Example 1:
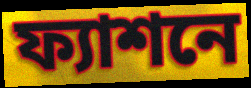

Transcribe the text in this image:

ফ্যাশনে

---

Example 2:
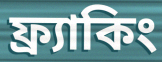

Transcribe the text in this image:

ফ্র্যাকিং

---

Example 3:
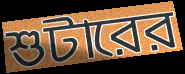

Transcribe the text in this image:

শুটারের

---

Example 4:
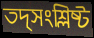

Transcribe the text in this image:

তদ্‌সংশ্লিষ্ট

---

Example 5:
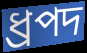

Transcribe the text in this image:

ধ্রপদ